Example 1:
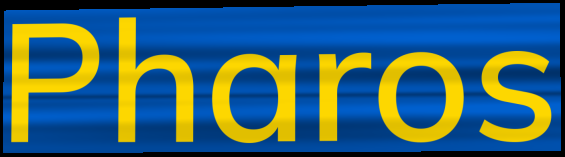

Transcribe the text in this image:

Pharos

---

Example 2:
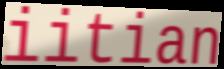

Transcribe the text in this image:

iitian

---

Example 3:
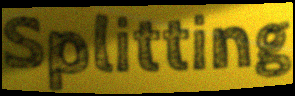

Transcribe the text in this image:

Splitting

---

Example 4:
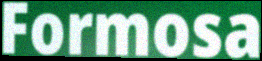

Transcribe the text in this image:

Formosa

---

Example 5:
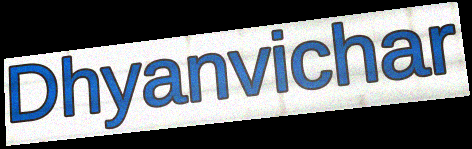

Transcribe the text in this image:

Dhyanvichar